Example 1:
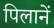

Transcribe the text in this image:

पिलानें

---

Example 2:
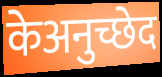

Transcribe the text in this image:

केअनुच्छेद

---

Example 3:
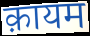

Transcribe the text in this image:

क़ायम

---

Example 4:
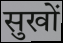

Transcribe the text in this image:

सुखों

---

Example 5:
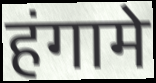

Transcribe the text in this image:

हंगामे